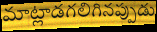
మాట్లాడగలిగినప్పుడు